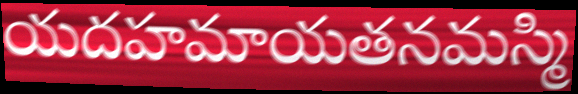
యదహమాయతనమస్మి